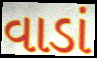
વાડાં